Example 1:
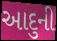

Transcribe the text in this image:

આદુની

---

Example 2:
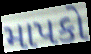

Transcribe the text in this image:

માપકો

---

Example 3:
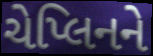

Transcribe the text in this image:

ચેપ્લિનને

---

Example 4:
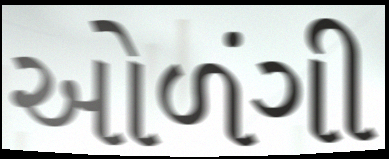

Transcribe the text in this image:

ઓળંગી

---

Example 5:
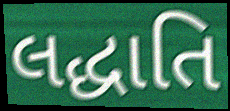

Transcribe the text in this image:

લદ્ધાતિ